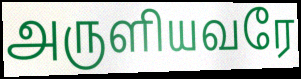
அருளியவரே